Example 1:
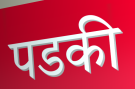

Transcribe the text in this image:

पडकी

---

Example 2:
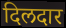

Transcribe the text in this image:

दिलदार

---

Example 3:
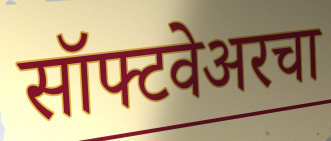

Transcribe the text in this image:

सॉफ्टवेअरचा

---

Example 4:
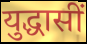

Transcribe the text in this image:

युद्धासीं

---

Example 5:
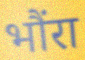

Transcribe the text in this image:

भौंरा